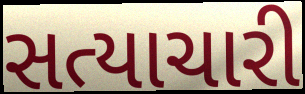
સત્યાચારી